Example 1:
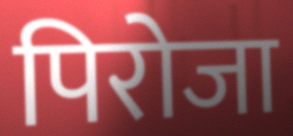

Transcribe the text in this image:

पिरोजा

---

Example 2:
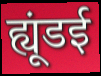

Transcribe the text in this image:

ह्यूंडई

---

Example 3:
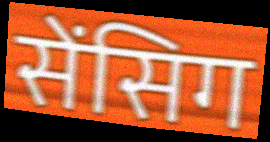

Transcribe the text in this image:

सेंसिग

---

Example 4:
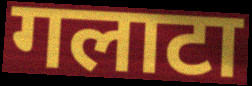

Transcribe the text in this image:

गलाटा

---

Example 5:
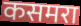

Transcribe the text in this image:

कसमरा